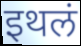
इथलं